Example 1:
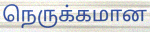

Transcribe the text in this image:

நெருக்கமான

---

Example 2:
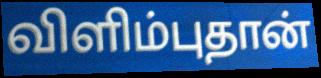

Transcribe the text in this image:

விளிம்புதான்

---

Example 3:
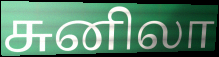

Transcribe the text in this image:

சுனிலா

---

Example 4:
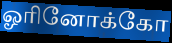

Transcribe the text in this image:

ஓரினோக்கோ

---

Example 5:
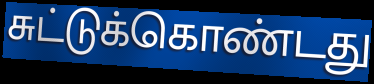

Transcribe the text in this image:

சுட்டுக்கொண்டது